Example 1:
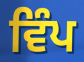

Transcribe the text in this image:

ਵਿੰਪ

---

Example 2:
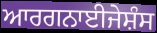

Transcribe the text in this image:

ਆਰਗਨਾਈਜੇਸ਼ੰਸ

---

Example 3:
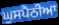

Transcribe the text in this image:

ਘੁਸਪੈਠੀਆ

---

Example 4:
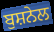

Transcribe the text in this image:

ਬੁਸ਼ਨੇਲ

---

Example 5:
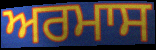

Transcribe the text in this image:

ਅਰਮਾਸ